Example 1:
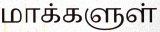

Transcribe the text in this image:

மாக்களுள்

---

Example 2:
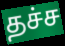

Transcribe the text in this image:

தச்ச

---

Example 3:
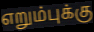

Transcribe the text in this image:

எறும்புக்கு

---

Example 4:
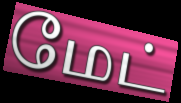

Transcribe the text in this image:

மேட்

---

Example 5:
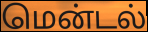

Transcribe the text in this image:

மென்டல்